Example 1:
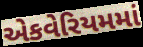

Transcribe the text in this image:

એકવેરિયમમાં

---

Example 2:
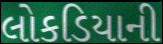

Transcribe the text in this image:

લોકડિયાની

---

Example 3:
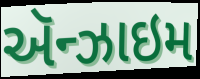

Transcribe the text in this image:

ઍન્ઝાઇમ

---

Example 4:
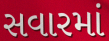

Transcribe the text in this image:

સવારમાં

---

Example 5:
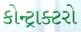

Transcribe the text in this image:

કોન્ટ્રાક્ટરો